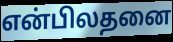
என்பிலதனை